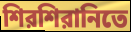
শিরশিরানিতে